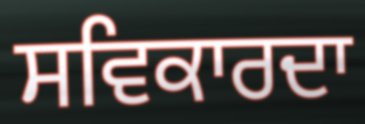
ਸਵਿਕਾਰਦਾ